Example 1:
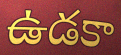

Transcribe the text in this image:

ఉడకా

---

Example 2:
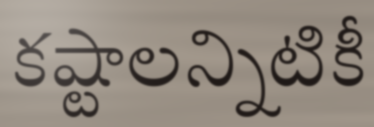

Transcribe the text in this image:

కష్టాలన్నిటికీ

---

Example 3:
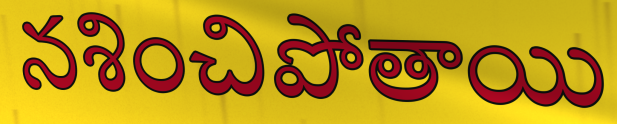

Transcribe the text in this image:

నశించిపోతాయి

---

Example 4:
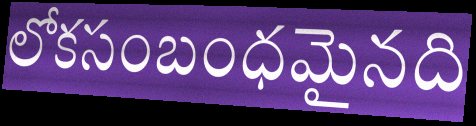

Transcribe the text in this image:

లోకసంబంధమైనది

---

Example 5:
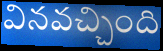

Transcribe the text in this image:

వినవచ్చింది